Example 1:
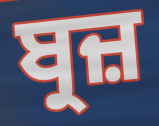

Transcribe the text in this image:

ਬ੍ਰਜ਼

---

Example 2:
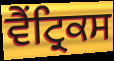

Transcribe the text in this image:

ਵੈਂਟ੍ਰਿਕਸ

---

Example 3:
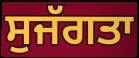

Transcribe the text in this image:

ਸੁਜੱਗਤਾ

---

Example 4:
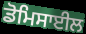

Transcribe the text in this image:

ਡੋਮਿਸਾਈਲ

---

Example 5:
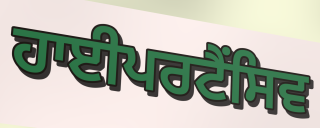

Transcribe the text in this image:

ਹਾਈਪਰਟੈਂਸਿਵ